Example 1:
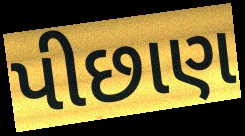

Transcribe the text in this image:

પીછાણ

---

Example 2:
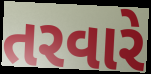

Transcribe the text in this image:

તરવારે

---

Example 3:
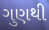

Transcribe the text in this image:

ગુણથી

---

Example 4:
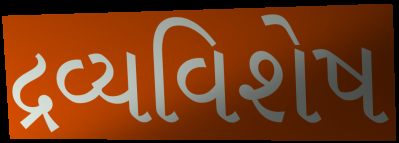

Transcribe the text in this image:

દ્રવ્યવિશેષ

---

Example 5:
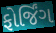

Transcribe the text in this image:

ફોર્જિંગ